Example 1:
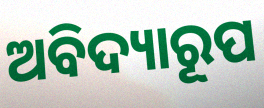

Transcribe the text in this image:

ଅବିଦ୍ୟାରୂପ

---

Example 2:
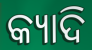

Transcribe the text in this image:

କ୍ୟାଦି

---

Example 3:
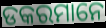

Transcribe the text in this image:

ଡକରମାନେ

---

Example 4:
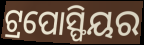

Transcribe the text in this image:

ଟ୍ରପୋସ୍ଫିୟର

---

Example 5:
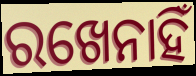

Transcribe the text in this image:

ରଖେନାହିଁ